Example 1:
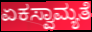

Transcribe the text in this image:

ಏಕಸ್ವಾಮ್ಯತೆ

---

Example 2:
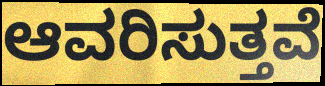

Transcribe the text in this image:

ಆವರಿಸುತ್ತವೆ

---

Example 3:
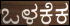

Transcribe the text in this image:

ಒಳಕೆಕ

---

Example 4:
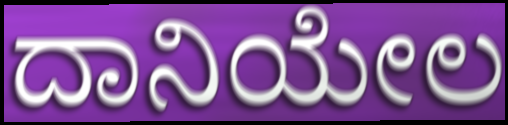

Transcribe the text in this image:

ದಾನಿಯೇಲ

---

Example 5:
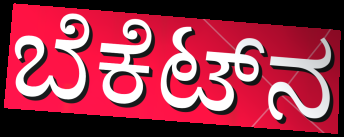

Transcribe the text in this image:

ಬೆಕೆಟ್‌ನ